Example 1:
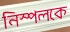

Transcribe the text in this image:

নিস্পলকে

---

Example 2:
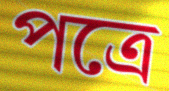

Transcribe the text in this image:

পত্রে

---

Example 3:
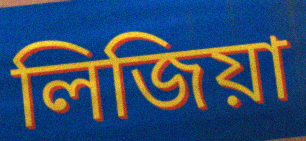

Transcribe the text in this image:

লিজিয়া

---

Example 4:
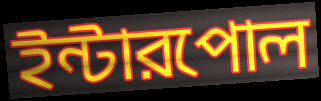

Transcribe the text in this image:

ইন্টারপোল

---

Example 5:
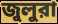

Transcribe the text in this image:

জুলুরা